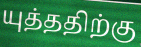
யுத்ததிற்கு